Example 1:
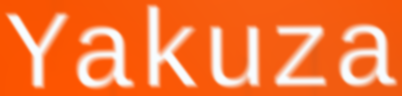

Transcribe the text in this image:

Yakuza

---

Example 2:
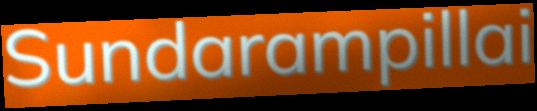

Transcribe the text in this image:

Sundarampillai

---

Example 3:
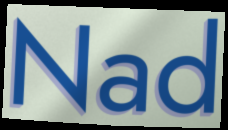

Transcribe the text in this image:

Nad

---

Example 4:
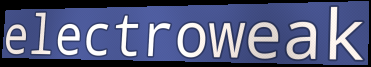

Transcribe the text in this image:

electroweak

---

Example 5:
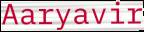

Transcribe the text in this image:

Aaryavir